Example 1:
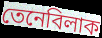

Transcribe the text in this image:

তেনেবিলাক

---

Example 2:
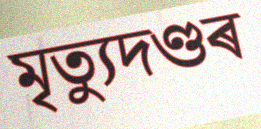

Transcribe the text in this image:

মৃত্যুদণ্ডৰ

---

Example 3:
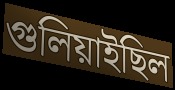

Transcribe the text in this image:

গুলিয়াইছিল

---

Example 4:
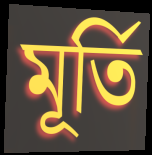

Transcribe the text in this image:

মূৰ্তি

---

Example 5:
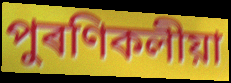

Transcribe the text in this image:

পুৰণিকলীয়া